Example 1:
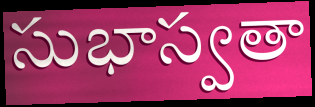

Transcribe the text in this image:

సుభాస్వతా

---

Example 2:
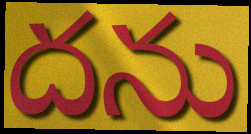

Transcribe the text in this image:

దను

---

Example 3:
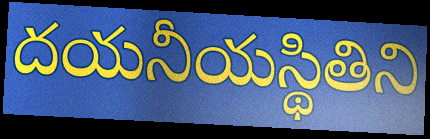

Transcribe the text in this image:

దయనీయస్థితిని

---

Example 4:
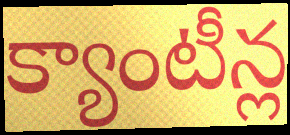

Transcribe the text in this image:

క్యాంటీన్ల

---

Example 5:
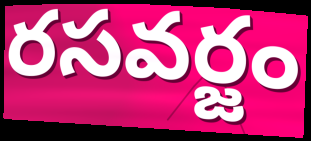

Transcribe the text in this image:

రసవర్జం